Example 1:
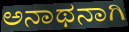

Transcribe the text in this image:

ಅನಾಥನಾಗಿ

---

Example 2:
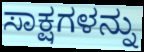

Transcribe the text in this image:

ಸಾಕ್ಷಗಳನ್ನು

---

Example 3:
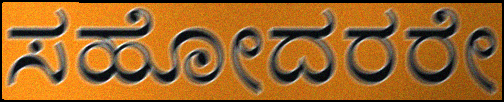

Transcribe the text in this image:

ಸಹೋದರರೇ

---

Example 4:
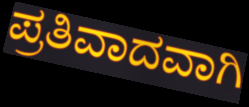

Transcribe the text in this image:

ಪ್ರತಿವಾದವಾಗಿ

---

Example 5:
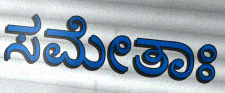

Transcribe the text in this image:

ಸಮೇತಾಃ